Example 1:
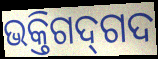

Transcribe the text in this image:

ଭକ୍ତିଗଦ୍‌ଗଦ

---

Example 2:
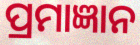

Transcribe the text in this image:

ପ୍ରମାଜ୍ଞାନ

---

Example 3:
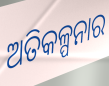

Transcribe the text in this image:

ଅତିକଳ୍ପନାର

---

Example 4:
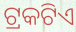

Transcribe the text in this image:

ଟ୍ରକଟିଏ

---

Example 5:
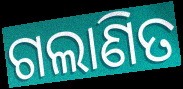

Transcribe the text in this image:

ଗଲାଣିତ